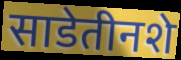
साडेतीनशे